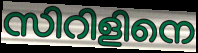
സിറിളിനെ